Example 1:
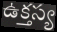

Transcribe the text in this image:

ఉక్తస్య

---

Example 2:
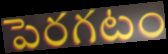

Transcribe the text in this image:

పెరగటం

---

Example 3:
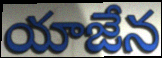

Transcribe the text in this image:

యాజేన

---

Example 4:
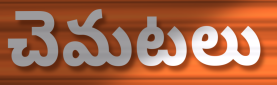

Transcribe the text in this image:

చెమటలు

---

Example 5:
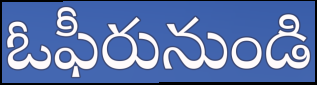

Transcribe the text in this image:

ఓఫీరునుండి